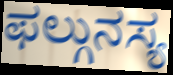
ಫಲ್ಗುನಸ್ಯ